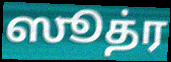
ஸூத்ர